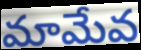
మామేవ